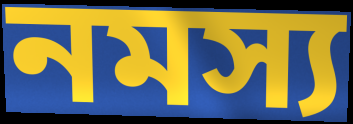
নমস্য